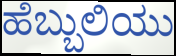
ಹೆಬ್ಬುಲಿಯು